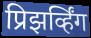
प्रिझर्व्हिंग